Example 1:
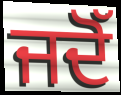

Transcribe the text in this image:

ਜਦੋੱ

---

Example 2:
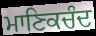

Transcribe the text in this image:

ਮਾਣਿਕਚੰਦ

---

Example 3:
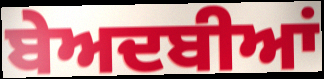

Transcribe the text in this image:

ਬੇਅਦਬੀਆਂ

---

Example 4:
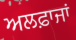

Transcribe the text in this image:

ਅਲਫ਼ਾਜਾਂ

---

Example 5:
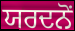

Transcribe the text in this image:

ਯਰਦਨੋਂ